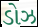
ડોઝ